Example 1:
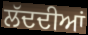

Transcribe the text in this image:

ਲੱਦਦੀਆਂ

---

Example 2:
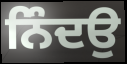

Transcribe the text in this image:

ਨਿੰਦਉ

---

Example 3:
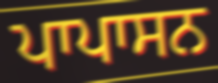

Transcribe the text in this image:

ਪਾਪਾਸਨ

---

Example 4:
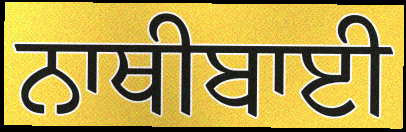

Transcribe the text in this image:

ਨਾਥੀਬਾਈ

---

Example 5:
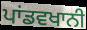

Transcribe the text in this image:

ਪਾਂਡਵਖਾਨੀ